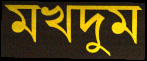
মখদুম